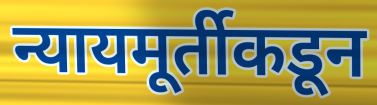
न्यायमूर्तीकडून